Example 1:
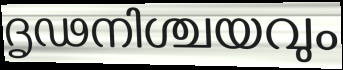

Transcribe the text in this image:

ദൃഢനിശ്ചയവും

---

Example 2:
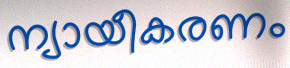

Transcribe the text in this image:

ന്യായീകരണം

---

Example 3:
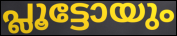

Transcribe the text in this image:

പ്ലൂട്ടോയും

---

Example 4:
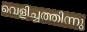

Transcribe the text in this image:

വെളിച്ചത്തിന്നു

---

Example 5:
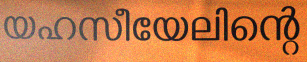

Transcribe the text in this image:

യഹസീയേലിന്റെ